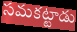
సమకట్టాడు